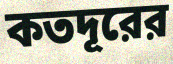
কতদূরের